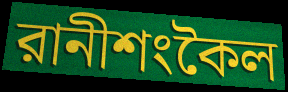
রানীশংকৈল